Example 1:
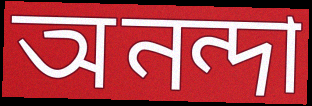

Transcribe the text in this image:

অনন্দা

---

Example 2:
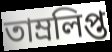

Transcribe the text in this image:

তাম্রলিপ্ত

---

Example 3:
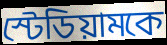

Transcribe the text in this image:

স্টেডিয়ামকে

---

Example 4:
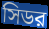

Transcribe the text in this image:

সিডর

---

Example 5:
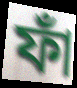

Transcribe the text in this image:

ফাঁ